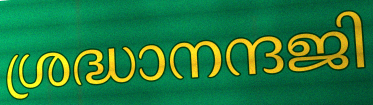
ശ്രദ്ധാനന്ദജി